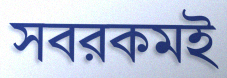
সবরকমই